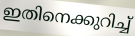
ഇതിനെക്കുറിച്ച്